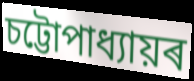
চট্টোপাধ্যায়ৰ